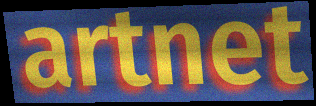
artnet